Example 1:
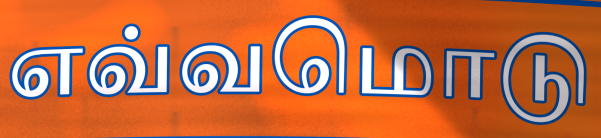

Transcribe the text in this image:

எவ்வமொடு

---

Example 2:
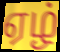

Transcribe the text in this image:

ஏழ்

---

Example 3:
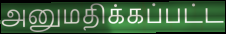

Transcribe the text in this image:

அனுமதிக்கப்பட்ட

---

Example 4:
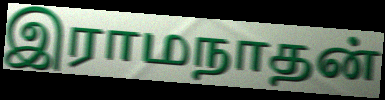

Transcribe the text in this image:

இராமநாதன்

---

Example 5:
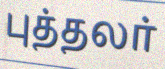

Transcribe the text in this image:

புத்தலர்